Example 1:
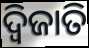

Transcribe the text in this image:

ଦ୍ୱିଜାତି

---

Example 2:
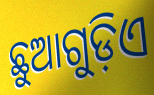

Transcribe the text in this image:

ଛୁଆଗୁଡ଼ିଏ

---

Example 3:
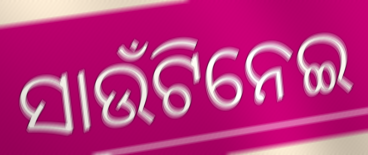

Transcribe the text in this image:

ସାଉଁଟିନେଇ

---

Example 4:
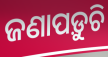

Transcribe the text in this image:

ଜଣାପଡ଼ୁଚି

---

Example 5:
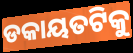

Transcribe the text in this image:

ଡକାୟତଟିକୁ